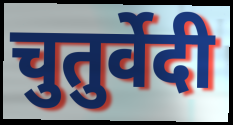
चुतुर्वेदी